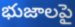
భుజాలపై